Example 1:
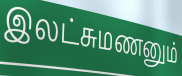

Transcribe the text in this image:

இலட்சுமணனும்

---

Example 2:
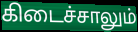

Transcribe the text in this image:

கிடைச்சாலும்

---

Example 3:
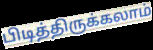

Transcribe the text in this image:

பிடித்திருக்கலாம்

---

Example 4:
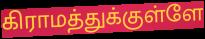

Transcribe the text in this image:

கிராமத்துக்குள்ளே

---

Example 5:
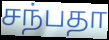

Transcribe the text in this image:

சந்பதா